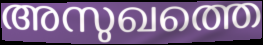
അസുഖത്തെ